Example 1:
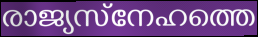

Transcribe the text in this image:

രാജ്യസ്‌നേഹത്തെ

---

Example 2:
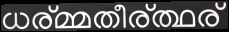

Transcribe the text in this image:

ധര്മ്മതീര്ത്ഥര്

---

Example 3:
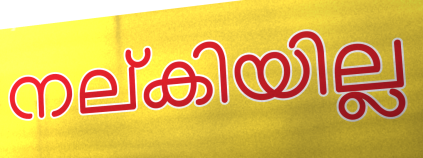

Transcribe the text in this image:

നല്കിയില്ല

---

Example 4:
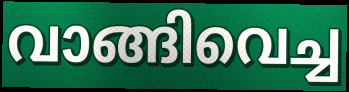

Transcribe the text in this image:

വാങ്ങിവെച്ച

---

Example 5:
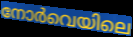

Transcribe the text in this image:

നോർവെയിലെ